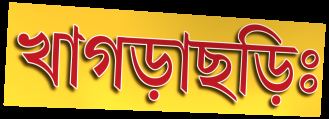
খাগড়াছড়িঃ